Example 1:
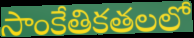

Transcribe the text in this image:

సాంకేతికతలలో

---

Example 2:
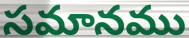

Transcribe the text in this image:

సమానము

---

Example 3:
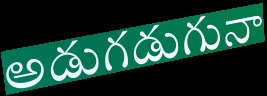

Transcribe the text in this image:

అడుగడుగునా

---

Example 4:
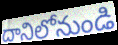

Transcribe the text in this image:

దానిలోనుండి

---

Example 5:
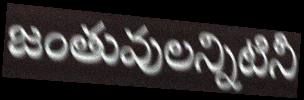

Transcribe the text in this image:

జంతువులన్నిటినీ